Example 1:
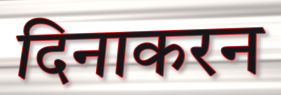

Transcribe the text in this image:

दिनाकरन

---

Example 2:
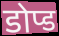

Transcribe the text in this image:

डोप्ड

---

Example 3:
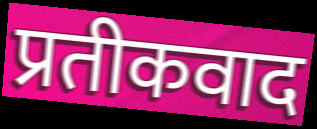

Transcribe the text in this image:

प्रतीकवाद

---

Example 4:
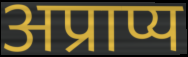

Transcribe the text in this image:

अप्राप्य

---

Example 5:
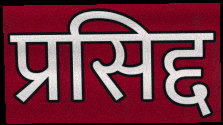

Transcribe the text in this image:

प्रसिद्द